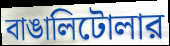
বাঙালিটোলার